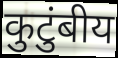
कुटुंबीय